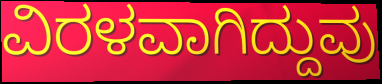
ವಿರಳವಾಗಿದ್ದುವು